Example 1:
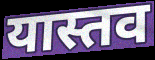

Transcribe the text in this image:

यास्तव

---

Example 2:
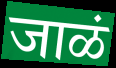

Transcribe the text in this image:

जाळं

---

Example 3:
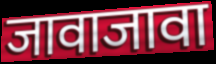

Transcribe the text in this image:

जावाजावा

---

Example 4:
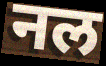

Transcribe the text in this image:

नल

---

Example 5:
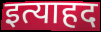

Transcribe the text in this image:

इत्याहद